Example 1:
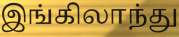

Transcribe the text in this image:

இங்கிலாந்து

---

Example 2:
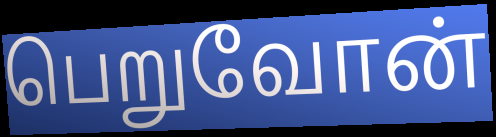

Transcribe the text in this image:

பெறுவோன்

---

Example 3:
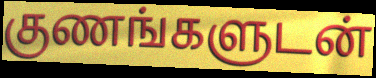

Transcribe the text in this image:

குணங்களுடன்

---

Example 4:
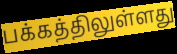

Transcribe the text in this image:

பக்கத்திலுள்ளது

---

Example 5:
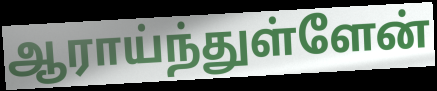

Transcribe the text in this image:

ஆராய்ந்துள்ளேன்